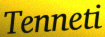
Tenneti